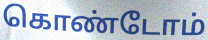
கொண்டோம்